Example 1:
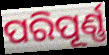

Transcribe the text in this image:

ପରିପୂର୍ଣ୍ଣ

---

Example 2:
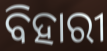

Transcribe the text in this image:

ବିହାରୀ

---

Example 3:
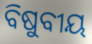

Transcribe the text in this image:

ବିଷୁବୀୟ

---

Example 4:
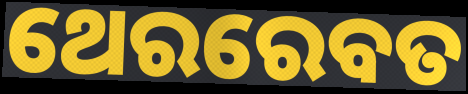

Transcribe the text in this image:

ଥେରରେବତ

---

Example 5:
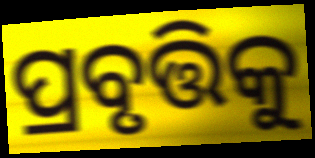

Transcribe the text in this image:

ପ୍ରବୃତ୍ତିକୁ